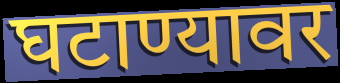
घटाण्यावर